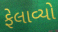
ફેલાવ્યો